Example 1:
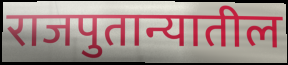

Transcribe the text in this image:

राजपुतान्यातील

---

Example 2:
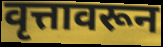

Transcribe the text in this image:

वृत्तावरून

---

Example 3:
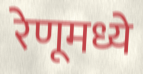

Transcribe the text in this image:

रेणूमध्ये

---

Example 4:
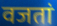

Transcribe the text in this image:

वजतां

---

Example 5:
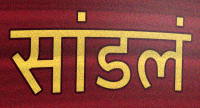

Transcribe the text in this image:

सांडलं